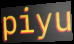
piyu